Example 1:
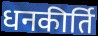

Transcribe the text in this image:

धनकीर्ति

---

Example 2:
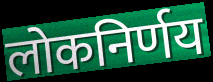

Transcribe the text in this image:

लोकनिर्णय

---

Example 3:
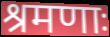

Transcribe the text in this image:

श्रमणाः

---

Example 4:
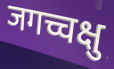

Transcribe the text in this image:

जगच्चक्षु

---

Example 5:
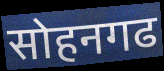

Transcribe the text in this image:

सोहनगढ